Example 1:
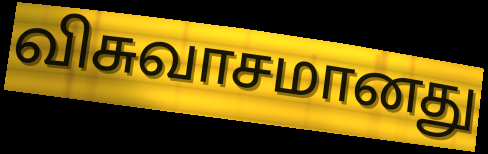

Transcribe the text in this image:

விசுவாசமானது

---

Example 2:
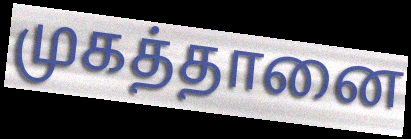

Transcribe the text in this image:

முகத்தானை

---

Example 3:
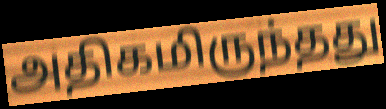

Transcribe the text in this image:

அதிகமிருந்தது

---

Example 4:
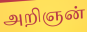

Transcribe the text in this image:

அறிஞன்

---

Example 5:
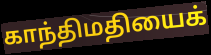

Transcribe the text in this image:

காந்திமதியைக்